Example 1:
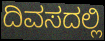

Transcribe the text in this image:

ದಿವಸದಲ್ಲಿ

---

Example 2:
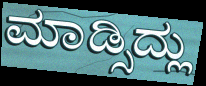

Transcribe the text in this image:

ಮಾಡ್ಸಿದ್ಲು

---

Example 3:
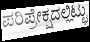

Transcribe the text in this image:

ಪರಿಪ್ರೇಕ್ಷದಲ್ಲಿಟ್ಟು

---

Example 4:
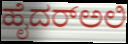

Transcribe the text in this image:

ಹೈದರ್‌ಅಲಿ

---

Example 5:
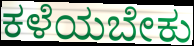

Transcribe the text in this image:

ಕಳೆಯಬೇಕು